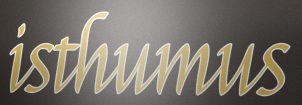
isthumus